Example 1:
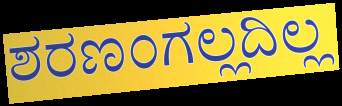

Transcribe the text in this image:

ಶರಣಂಗಲ್ಲದಿಲ್ಲ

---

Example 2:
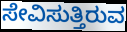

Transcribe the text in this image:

ಸೇವಿಸುತ್ತಿರುವ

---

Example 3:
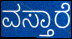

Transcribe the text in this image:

ವಸ್ತಾರೆ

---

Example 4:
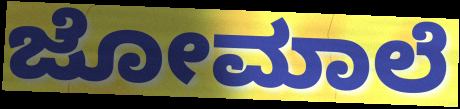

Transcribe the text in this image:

ಜೋಮಾಲೆ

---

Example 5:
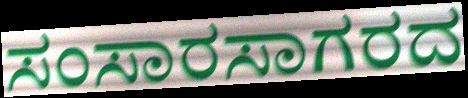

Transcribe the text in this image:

ಸಂಸಾರಸಾಗರದ